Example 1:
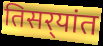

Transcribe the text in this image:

तिसर्‍यांत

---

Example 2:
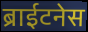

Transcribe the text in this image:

ब्राईटनेस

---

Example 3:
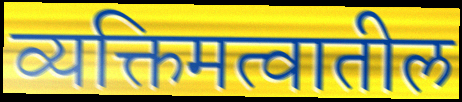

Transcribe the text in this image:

व्यक्तिमत्वातील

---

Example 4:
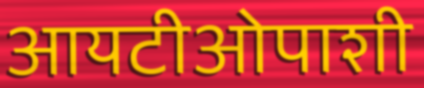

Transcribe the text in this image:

आयटीओपाशी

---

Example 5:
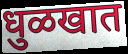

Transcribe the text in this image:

धुळखात